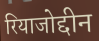
रियाजोद्दीन